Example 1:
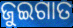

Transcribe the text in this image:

ଜୁଇଗାତ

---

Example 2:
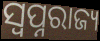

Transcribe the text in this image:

ସ୍ୱପ୍ନରାଜ୍ୟ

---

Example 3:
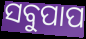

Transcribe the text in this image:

ସବୁପାପ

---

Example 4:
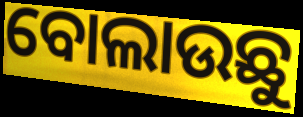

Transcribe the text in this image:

ବୋଲାଉଛୁ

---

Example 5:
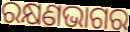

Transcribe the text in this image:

ରକ୍ଷଣଭାଗର